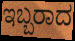
ಇಬ್ಬರಾದ